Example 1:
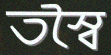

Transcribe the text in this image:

তস্বৈ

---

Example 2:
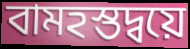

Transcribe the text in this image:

বামহস্তদ্বয়ে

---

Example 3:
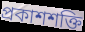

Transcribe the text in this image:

প্রকাশশক্তি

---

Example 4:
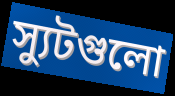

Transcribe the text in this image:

স্যুটগুলো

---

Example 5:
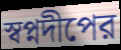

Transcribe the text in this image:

স্বপ্নদীপের